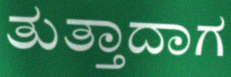
ತುತ್ತಾದಾಗ